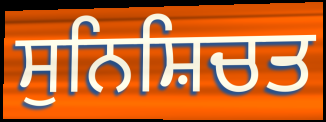
ਸੁਨਿਸ਼ਿਚਤ